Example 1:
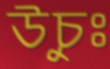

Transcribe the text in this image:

উচুঃ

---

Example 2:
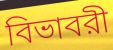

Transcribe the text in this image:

বিভাবরী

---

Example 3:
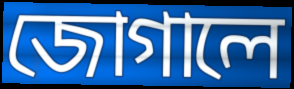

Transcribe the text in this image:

জোগালে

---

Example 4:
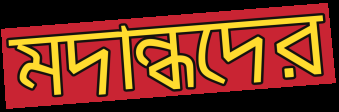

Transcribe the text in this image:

মদান্ধদের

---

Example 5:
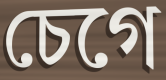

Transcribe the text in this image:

চেগে